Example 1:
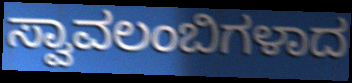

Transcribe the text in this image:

ಸ್ವಾವಲಂಬಿಗಳಾದ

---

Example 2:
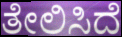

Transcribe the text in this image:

ತೇಲಿಸಿದೆ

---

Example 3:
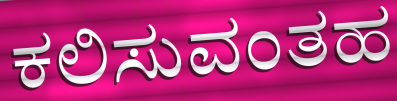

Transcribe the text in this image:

ಕಲಿಸುವಂತಹ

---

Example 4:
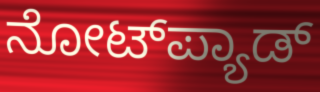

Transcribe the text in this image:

ನೋಟ್‌ಪ್ಯಾಡ್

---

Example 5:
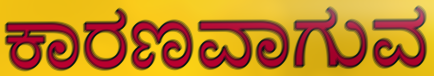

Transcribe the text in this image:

ಕಾರಣವಾಗುವ